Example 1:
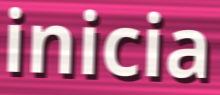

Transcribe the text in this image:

inicia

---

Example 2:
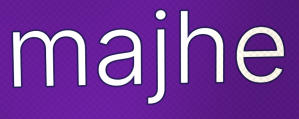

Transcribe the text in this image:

majhe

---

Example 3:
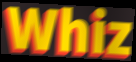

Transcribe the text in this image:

Whiz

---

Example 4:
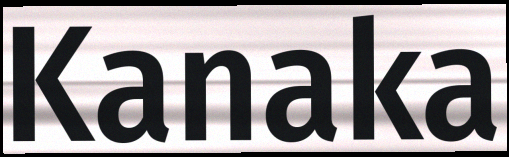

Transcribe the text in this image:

Kanaka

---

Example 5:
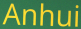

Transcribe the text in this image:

Anhui